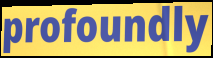
profoundly